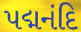
પદ્મનંદિ